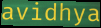
avidhya